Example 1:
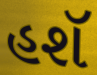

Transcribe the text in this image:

હશૅ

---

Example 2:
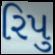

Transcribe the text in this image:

રિપુ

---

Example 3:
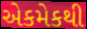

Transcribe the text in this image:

એકમેકથી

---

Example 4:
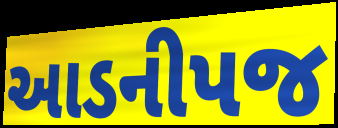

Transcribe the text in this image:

આડનીપજ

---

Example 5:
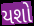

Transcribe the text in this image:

યશો